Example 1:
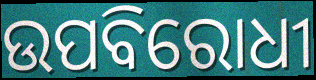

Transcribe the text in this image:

ଉପବିରୋଧୀ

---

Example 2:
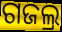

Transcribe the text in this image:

ଗଜଲ୍ର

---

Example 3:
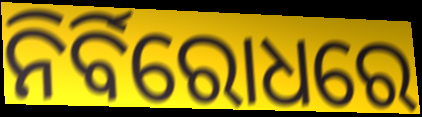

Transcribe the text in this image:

ନିର୍ବିରୋଧରେ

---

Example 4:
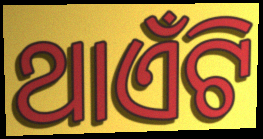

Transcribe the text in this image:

ଥାଏଁଟି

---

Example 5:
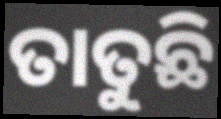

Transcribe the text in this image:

ତାତୁଛି